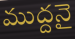
ముద్దనై